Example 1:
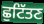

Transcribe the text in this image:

ਛੁਟਿੱਤਣ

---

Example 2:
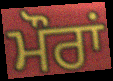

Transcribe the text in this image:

ਮੌਰਾਂ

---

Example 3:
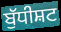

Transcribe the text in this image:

ਬੁੱਧੀਸ਼ਟ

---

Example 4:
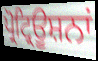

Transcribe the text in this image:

ਪ੍ਰੋਟ੍ਰਿਊਸ਼ਨਾਂ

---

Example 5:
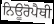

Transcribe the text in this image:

ਨਿਊਰੋਪੈਥੀ